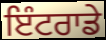
ਇੰਟਰਾਡੇ